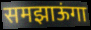
समझाऊंगा